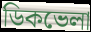
ডিকভেলা